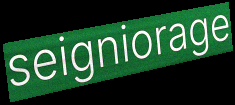
seigniorage